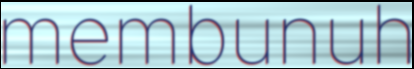
membunuh